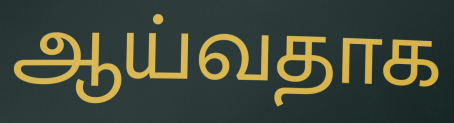
ஆய்வதாக